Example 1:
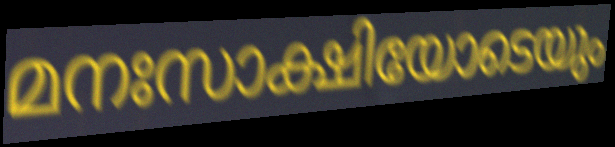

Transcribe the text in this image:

മനഃസാക്ഷിയോടെയും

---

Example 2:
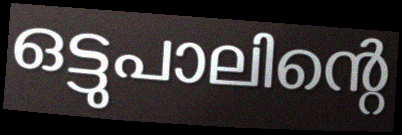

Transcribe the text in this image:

ഒട്ടുപാലിന്റെ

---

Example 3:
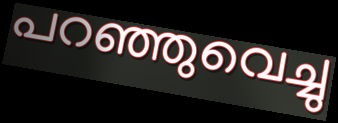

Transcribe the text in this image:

പറഞ്ഞുവെച്ചു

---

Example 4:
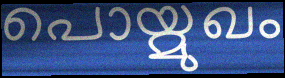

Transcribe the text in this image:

പൊയ്മുഖം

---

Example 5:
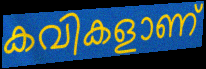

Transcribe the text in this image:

കവികളാണ്